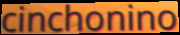
cinchonino